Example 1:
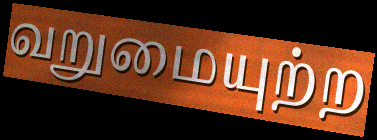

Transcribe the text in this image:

வறுமையுற்ற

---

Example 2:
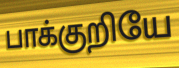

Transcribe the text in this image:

பாக்குறியே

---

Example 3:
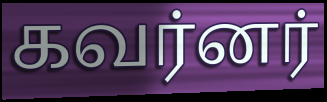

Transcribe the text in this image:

கவர்னர்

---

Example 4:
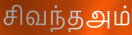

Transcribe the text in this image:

சிவந்தஅம்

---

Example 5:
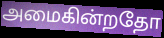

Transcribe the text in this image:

அமைகின்றதோ